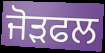
ਜੋੜਫਲ